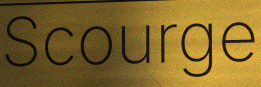
Scourge